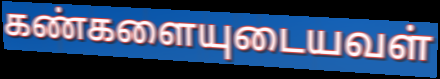
கண்களையுடையவள்